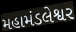
મહામંડલેશ્વર